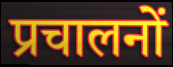
प्रचालनों